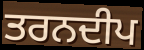
ਤਰਨਦੀਪ